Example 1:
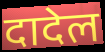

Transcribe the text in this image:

दादेल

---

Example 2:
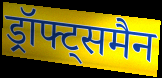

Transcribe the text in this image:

ड्रॉफ्ट्समैन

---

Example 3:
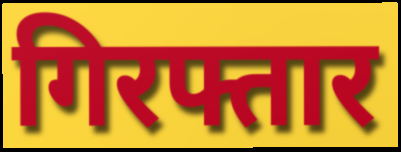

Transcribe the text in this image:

गिरफ्तार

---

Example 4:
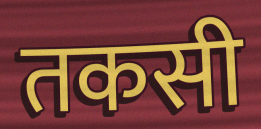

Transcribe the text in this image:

तकसी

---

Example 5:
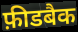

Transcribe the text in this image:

फ़ीडबैक